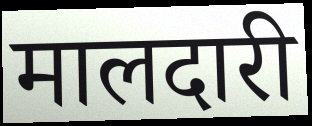
मालदारी